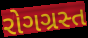
રોગગ્રસ્ત